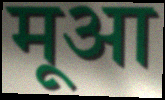
मूआ